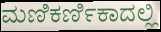
ಮಣಿಕರ್ಣಿಕಾದಲ್ಲಿ